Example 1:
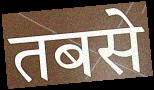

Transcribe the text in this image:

तबसे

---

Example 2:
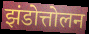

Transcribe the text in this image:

झंडोत्तोलन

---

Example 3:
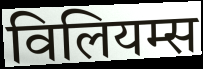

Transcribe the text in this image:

विलियम्स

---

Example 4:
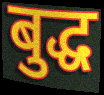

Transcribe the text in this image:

बुद्ध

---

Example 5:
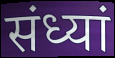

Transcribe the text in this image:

संध्यां